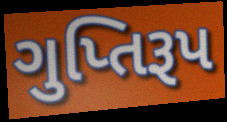
ગુપ્તિરૂપ